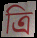
ত্রি